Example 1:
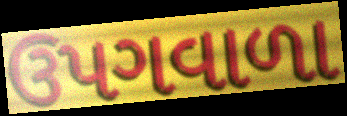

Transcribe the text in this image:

ઉપગવાળા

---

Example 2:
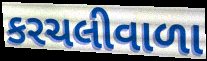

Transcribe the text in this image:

કરચલીવાળા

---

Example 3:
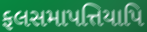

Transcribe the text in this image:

ફલસમાપત્તિયાપિ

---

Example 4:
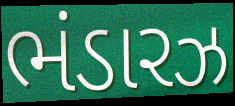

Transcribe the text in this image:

ભંડારઝ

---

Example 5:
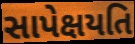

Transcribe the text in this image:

સાપેક્ષયતિ